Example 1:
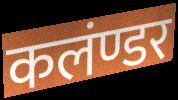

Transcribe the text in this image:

कलंण्डर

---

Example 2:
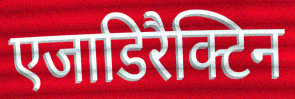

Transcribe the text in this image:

एजाडिरैक्टिन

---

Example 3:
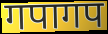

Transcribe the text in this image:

गपागप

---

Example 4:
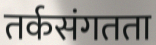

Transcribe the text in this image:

तर्कसंगतता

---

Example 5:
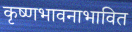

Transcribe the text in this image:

कृष्णभावनाभावित